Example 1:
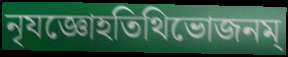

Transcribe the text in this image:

নৃযজ্ঞোহতিথিভোজনম্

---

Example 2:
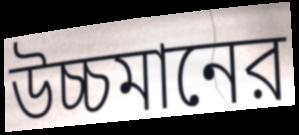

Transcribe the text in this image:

উচ্চমানের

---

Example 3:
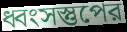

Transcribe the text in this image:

ধ্বংসস্তুপের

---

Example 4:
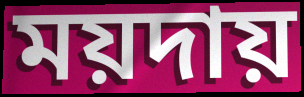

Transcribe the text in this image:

ময়দায়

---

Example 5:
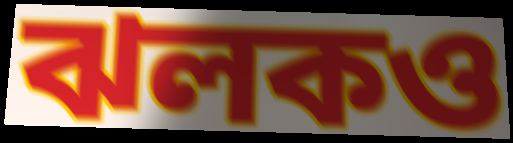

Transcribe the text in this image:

ঝলকও